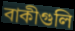
বাকীগুলি